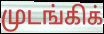
முடங்கிக்